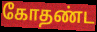
கோதண்ட